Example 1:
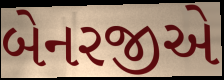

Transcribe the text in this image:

બેનરજીએ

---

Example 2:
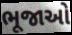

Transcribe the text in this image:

ભૂજાઓ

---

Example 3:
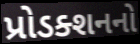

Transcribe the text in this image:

પ્રોડક્શનનો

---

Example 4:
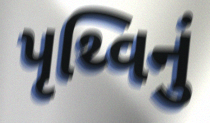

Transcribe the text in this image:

પૃથ્વિનું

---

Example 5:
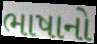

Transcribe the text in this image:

ભાષાનો